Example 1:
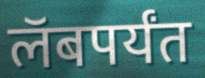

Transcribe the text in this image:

लॅबपर्यंत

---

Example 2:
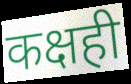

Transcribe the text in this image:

कक्षही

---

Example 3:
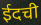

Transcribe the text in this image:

ईदची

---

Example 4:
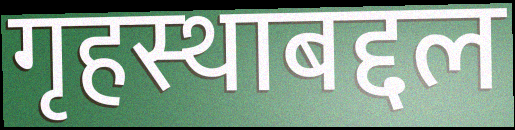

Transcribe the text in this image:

गृहस्थाबद्दल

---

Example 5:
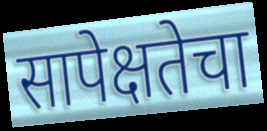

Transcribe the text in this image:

सापेक्षतेचा